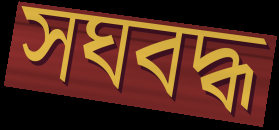
সঘবদ্ধ